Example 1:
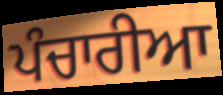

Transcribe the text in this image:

ਪੰਚਾਰੀਆ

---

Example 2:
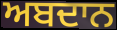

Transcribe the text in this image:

ਅਬਦਾਨ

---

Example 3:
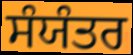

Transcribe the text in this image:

ਸੰਯੰਤਰ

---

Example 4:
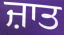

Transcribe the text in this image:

ਜ਼ਾਤ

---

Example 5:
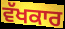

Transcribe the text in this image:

ਵੱਖਕਾਰ